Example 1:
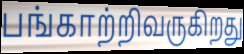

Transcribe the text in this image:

பங்காற்றிவருகிறது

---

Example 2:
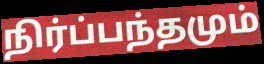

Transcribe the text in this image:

நிர்ப்பந்தமும்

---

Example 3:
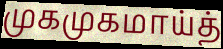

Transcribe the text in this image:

முகமுகமாய்த்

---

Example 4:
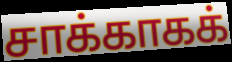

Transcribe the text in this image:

சாக்காகக்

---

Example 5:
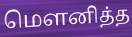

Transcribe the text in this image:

மௌனித்த